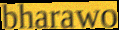
bharawo